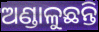
ଅଣ୍ଡାଳୁଛନ୍ତି